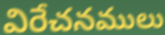
విరేచనములు